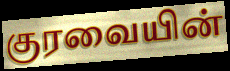
குரவையின்